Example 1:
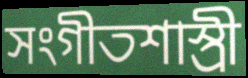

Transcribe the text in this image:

সংগীতশাস্ত্রী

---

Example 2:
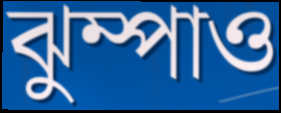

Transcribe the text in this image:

ঝুম্পাও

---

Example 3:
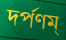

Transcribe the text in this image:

দর্পণম্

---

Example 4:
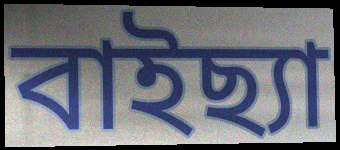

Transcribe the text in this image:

বাইছ্যা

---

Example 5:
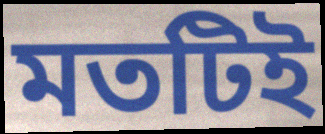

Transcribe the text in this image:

মতটিই